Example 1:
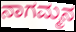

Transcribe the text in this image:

ನಾಗಮ್ಮನ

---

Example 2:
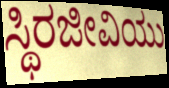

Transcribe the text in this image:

ಸ್ಥಿರಜೀವಿಯು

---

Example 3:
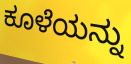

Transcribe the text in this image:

ಕೂಳೆಯನ್ನು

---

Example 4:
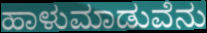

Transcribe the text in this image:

ಹಾಳುಮಾಡುವೆನು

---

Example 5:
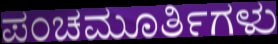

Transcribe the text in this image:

ಪಂಚಮೂರ್ತಿಗಳು